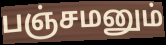
பஞ்சமனும்